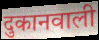
दुकानवाली